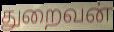
துறைவன்